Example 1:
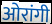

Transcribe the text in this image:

ओरांगी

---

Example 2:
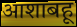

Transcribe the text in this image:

आशाबहू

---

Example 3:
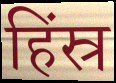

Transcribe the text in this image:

हिंस्र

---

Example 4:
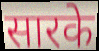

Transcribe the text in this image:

सारके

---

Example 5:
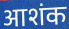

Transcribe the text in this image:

आशंक